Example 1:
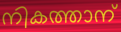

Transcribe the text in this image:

നികത്താന്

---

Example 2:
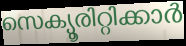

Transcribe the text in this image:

സെക്യൂരിറ്റിക്കാർ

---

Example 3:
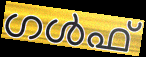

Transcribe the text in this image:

ഗൾഫ്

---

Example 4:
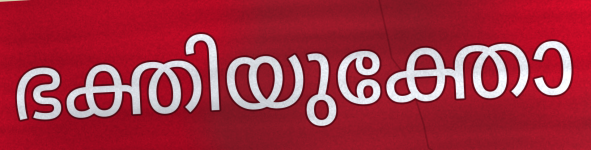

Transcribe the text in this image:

ഭക്തിയുക്തോ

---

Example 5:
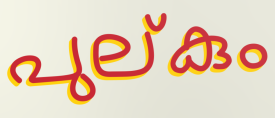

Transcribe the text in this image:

പുല്കും